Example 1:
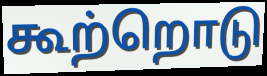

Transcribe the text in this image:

கூற்றொடு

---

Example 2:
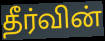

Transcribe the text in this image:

தீர்வின்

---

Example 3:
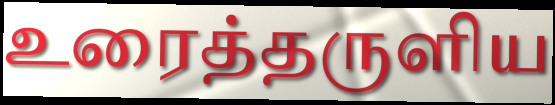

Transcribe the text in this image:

உரைத்தருளிய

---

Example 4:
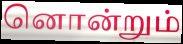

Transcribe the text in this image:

னொன்றும்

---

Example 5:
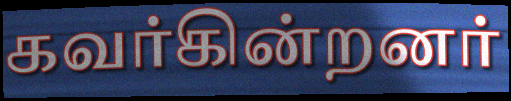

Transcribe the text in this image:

கவர்கின்றனர்